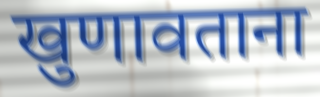
खुणावताना